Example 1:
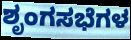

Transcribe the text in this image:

ಶೃಂಗಸಭೆಗಳ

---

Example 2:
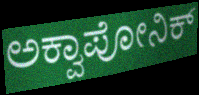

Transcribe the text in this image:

ಅಕ್ವಾಪೋನಿಕ್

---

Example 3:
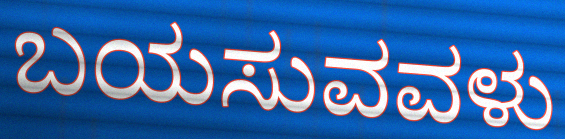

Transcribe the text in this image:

ಬಯಸುವವಳು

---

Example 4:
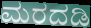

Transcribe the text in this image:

ಮರದಡಿ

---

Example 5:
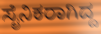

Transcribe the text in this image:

ಸೈನಿಕರಾಗಿದ್ದ